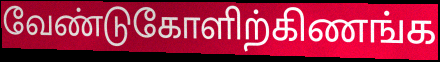
வேண்டுகோளிற்கிணங்க